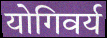
योगिवर्य